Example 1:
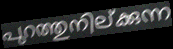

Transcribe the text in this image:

പുറത്തുനില്ക്കുന്ന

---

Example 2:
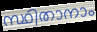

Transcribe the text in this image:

സ്ഥിതാനാം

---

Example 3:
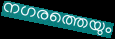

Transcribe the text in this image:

നഗരത്തെയും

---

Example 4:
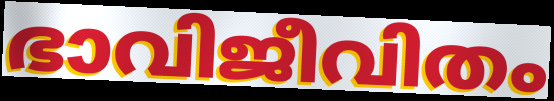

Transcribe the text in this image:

ഭാവിജീവിതം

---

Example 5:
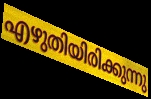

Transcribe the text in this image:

എഴുതിയിരിക്കുന്നു